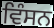
ਵਿੰਸਨ